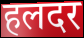
हलदर